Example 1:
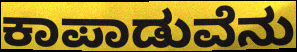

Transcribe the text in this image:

ಕಾಪಾಡುವೆನು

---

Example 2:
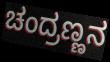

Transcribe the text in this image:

ಚಂದ್ರಣ್ಣನ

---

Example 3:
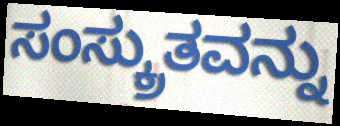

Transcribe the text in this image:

ಸಂಸ್ಕ್ರುತವನ್ನು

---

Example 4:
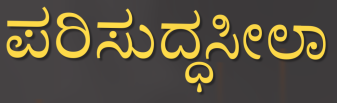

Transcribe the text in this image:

ಪರಿಸುದ್ಧಸೀಲಾ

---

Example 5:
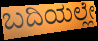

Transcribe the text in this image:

ಬದಿಯಲ್ಲೇ